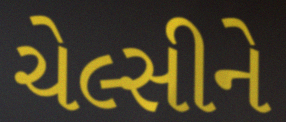
ચેલ્સીને